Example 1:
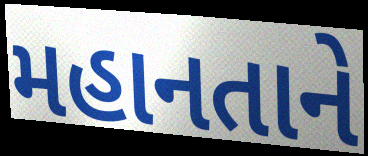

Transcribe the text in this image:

મહાનતાને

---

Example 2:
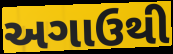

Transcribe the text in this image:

અગાઉથી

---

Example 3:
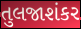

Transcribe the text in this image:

તુલજાશંકર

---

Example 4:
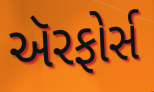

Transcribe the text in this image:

ઍરફોર્સ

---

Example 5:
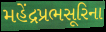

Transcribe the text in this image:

મહેંદ્રપ્રભસૂરિના